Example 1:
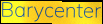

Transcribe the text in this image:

Barycenter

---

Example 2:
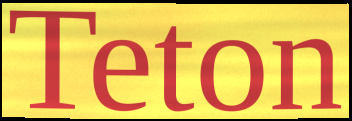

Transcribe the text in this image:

Teton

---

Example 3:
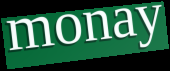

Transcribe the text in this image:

monay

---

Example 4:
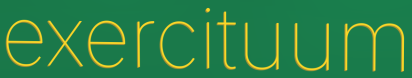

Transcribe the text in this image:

exercituum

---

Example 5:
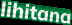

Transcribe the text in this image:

lihitana